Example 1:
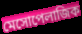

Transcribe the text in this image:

মেসোপেলাজিক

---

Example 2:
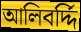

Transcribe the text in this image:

আলিবর্দ্দি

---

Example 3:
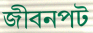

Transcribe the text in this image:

জীবনপট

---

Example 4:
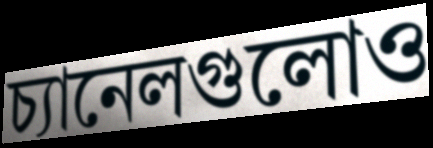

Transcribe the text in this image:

চ্যানেলগুলোও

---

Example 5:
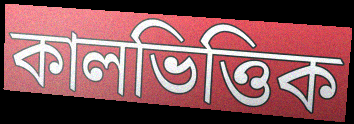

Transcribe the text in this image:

কালভিত্তিক